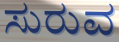
ಸುರುವ